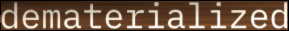
dematerialized